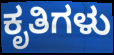
ಕೃತಿಗಳು